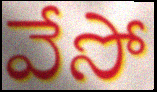
వేసో